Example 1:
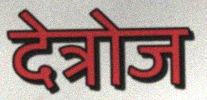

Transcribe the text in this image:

देत्रोज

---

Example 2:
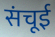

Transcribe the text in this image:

संचूई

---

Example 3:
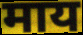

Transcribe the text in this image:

माय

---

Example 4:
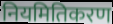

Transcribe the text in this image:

नियमितिकरण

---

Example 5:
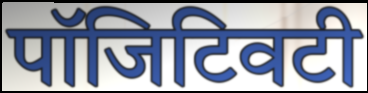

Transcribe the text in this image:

पॉजिटिवटी